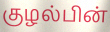
குழல்பின்